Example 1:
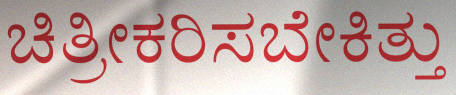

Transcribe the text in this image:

ಚಿತ್ರೀಕರಿಸಬೇಕಿತ್ತು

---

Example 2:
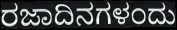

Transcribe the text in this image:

ರಜಾದಿನಗಳಂದು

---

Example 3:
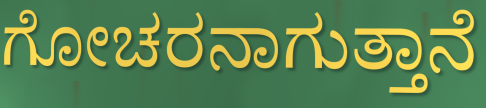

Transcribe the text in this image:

ಗೋಚರನಾಗುತ್ತಾನೆ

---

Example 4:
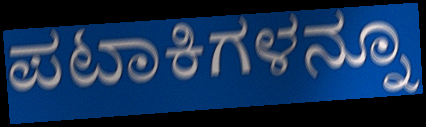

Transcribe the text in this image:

ಪಟಾಕಿಗಳನ್ನೂ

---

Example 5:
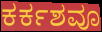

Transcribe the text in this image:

ಕರ್ಕಶವೂ